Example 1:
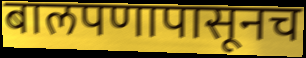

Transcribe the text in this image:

बालपणापासूनच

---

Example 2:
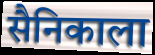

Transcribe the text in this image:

सैनिकाला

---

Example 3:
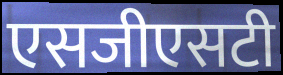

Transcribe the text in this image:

एसजीएसटी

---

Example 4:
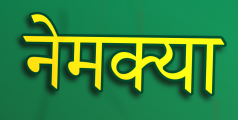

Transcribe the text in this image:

नेमक्या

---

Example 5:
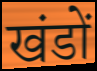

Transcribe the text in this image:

खंडों